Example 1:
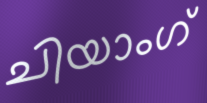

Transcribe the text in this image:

ചിയാംഗ്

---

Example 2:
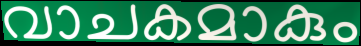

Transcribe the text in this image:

വാചകമാകും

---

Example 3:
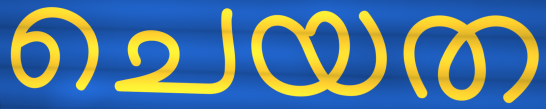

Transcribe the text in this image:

ചെയത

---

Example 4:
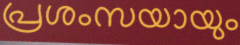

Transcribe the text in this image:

പ്രശംസയായും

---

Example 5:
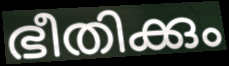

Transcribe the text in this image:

ഭീതിക്കും